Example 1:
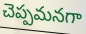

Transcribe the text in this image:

చెప్పమనగా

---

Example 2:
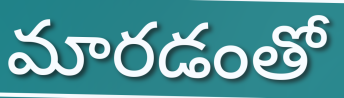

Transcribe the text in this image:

మారడంతో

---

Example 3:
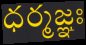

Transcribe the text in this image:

ధర్మజ్ఞః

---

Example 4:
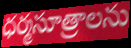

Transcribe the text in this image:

ధర్మసూత్రాలను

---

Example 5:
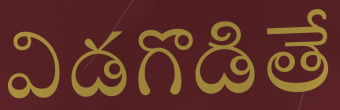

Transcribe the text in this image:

విడగొడితే